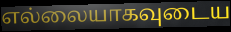
எல்லையாகவுடைய